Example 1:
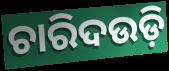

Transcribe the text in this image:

ଚାରିଦଉଡ଼ି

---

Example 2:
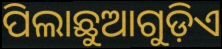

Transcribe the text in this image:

ପିଲାଛୁଆଗୁଡ଼ିଏ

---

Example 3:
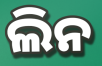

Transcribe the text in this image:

ଲିନ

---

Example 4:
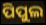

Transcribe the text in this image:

ପିପୁଲ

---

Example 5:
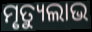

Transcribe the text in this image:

ମୃତ୍ୟୁଲାଭ